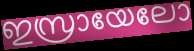
ഇസ്രായേലോ